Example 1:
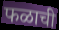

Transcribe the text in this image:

फळाची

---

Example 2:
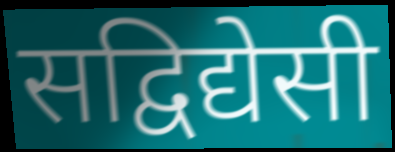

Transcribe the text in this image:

सद्विद्येसी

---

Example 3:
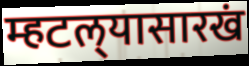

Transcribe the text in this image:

म्हटल्यासारखं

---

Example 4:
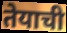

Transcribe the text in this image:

तेयाची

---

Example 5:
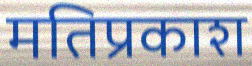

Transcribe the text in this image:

मतिप्रकाश